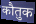
कौतुक